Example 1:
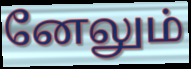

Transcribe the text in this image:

னேலும்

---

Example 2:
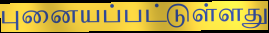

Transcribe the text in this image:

புனையப்பட்டுள்ளது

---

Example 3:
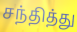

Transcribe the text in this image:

சந்தித்து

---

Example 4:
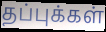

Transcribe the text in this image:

தப்புக்கள்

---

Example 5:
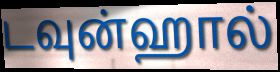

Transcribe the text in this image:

டவுன்ஹால்